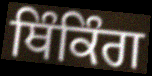
ਥਿੰਕਿੰਗ